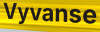
Vyvanse